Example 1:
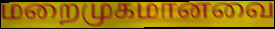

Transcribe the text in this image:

மறைமுகமானவை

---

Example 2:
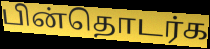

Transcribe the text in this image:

பின்தொடர்க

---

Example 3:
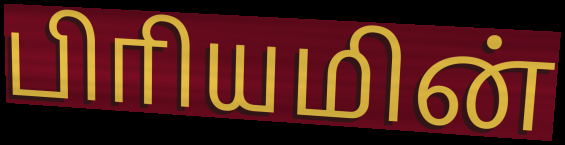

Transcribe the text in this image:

பிரியமின்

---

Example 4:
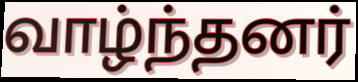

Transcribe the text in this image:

வாழ்ந்தனர்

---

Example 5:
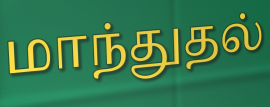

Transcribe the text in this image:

மாந்துதல்